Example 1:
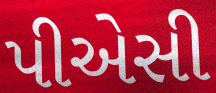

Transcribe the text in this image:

પીએસી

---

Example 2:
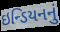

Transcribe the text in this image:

ઇન્ડિયનનું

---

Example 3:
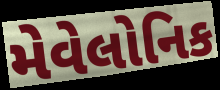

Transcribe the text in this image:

મેવેલોનિક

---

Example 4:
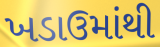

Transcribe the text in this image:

ખડાઉમાંથી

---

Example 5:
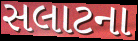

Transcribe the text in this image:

સલાટના